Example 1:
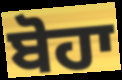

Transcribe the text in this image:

ਬੋਹਾ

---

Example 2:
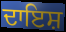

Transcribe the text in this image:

ਦਾਇਸ਼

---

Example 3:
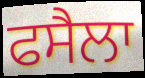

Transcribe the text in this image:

ਫਸੈਲਾ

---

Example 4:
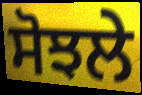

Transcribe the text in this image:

ਸੋਝਲੇ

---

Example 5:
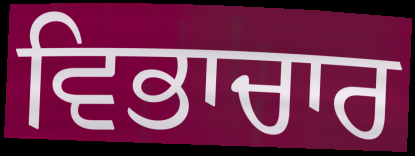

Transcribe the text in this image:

ਵਿਭਾਚਾਰ